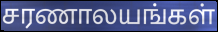
சரணாலயங்கள்